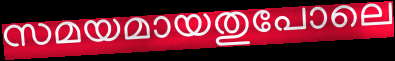
സമയമായതുപോലെ